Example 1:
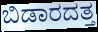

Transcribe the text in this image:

ಬಿಡಾರದತ್ತ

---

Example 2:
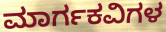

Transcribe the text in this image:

ಮಾರ್ಗಕವಿಗಳ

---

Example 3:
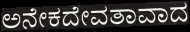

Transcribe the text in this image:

ಅನೇಕದೇವತಾವಾದ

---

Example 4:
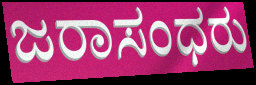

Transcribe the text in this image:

ಜರಾಸಂಧರು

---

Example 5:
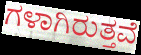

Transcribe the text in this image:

ಗಳಾಗಿರುತ್ತವೆ